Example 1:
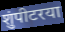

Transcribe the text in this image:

शुंपीटरया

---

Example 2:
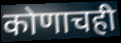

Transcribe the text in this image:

कोणाचही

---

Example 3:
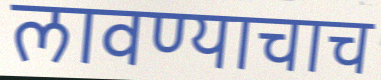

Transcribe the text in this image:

लावण्याचाच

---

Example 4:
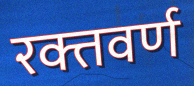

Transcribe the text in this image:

रक्तवर्ण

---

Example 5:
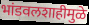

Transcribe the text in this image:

भांडवलशाहीमुळे